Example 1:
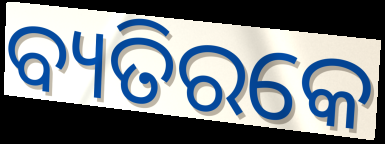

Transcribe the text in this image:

ବ୍ୟତିରକେ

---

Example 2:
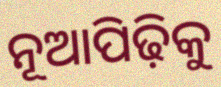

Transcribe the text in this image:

ନୂଆପିଢ଼ିକୁ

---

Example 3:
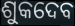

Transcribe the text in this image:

ଶୁକଦେବ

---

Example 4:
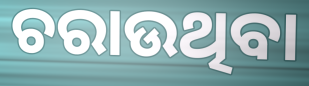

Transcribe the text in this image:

ଚରାଉଥିବା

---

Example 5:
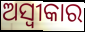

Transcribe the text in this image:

ଅସ୍ୱୀକାର